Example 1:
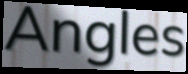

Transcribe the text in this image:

Angles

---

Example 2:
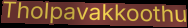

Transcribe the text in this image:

Tholpavakkoothu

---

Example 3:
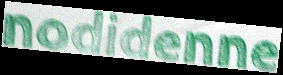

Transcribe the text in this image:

nodidenne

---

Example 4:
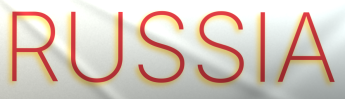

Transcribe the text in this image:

RUSSIA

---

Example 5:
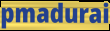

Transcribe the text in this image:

pmadurai